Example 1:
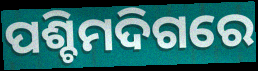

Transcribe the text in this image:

ପଶ୍ଚିମଦିଗରେ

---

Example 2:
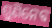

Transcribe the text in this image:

ଶୁଣିନେବ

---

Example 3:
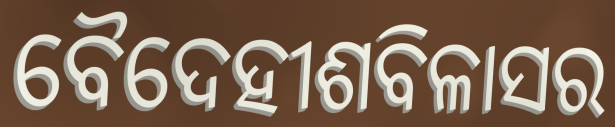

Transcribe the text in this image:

ବୈଦେହୀଶବିଳାସର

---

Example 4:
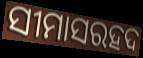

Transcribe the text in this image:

ସୀମାସରହଦ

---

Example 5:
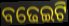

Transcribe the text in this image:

ବଢେଇଟି